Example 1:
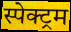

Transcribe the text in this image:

स्पेक्ट्रम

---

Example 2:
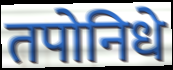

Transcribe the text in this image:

तपोनिधे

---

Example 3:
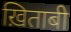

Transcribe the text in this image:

ख़िताबी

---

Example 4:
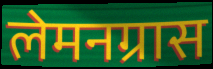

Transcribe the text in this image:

लेमनग्रास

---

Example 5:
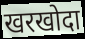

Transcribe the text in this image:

खरखोदा